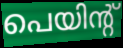
പെയിന്റ്